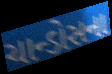
ચાન્ડોસના